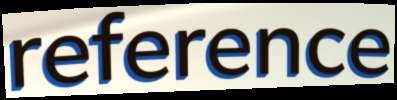
reference